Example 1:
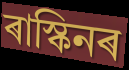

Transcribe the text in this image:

ৰাস্কিনৰ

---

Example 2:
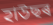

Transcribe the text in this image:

হাউছৰ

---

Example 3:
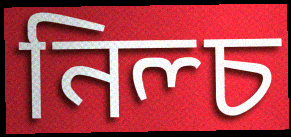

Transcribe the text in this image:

নিল্চ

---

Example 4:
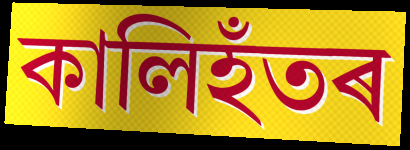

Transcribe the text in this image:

কালিহঁতৰ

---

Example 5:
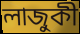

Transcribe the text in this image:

লাজুকী